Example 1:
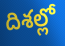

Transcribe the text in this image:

దిశల్లో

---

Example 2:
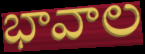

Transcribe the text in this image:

భావాల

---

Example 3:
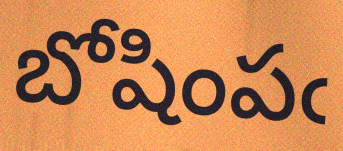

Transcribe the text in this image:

బోషింపఁ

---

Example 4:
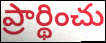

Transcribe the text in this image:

ప్రార్థించు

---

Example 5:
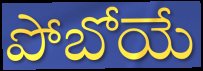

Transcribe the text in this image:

పోబోయే